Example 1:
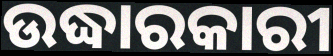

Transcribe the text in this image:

ଉଦ୍ଧାରକାରୀ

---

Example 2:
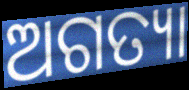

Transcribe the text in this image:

ଅଗତ୍ୟା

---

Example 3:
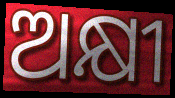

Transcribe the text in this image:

ଅକ୍ଷୀ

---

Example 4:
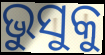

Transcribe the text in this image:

ଭୁସୁକୁ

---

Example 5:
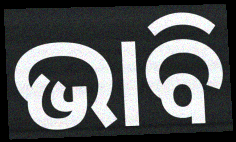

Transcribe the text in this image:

ଭାବି